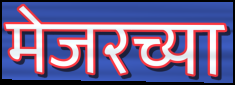
मेजरच्या